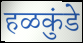
हळकुंडे